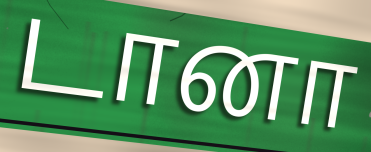
டானா